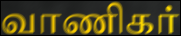
வாணிகர்